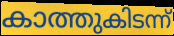
കാത്തുകിടന്ന്